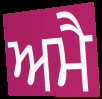
ਅਮੈ